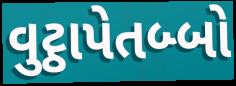
વુટ્ઠાપેતબ્બો